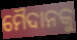
ମୈଦାନକୁ